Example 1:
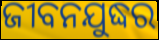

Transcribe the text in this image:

ଜୀବନଯୁଦ୍ଧର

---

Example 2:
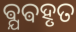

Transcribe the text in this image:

ଵ୍ଯଵହୃତ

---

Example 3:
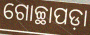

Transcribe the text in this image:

ଗୋଚ୍ଛାପଡ଼ା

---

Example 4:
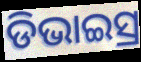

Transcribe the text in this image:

ଡିଭାଇସ୍ର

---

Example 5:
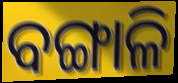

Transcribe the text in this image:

ବଙ୍ଗାଳି